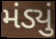
મંડ્યું